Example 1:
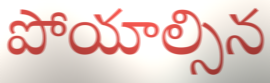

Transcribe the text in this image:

పోయాల్సిన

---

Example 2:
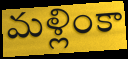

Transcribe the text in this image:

మళ్లింకా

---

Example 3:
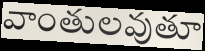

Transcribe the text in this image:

వాంతులవుతూ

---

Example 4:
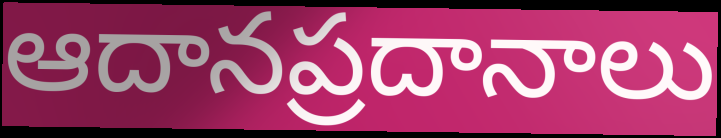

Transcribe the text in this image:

ఆదానప్రదానాలు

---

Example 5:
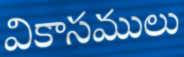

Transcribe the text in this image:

వికాసములు